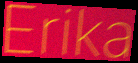
Erika